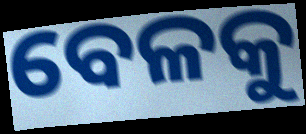
ବେଳକୁ